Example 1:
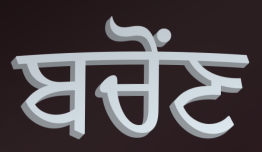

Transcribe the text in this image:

ਬਚੋਂਣ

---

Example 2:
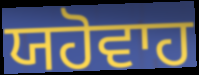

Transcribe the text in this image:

ਯਹੋਵਾਹ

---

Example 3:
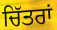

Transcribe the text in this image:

ਚਿੱਤਰਾਂ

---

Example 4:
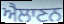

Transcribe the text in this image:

ਐਲਾਣਨ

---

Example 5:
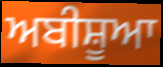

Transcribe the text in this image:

ਅਬੀਸ਼ੂਆ